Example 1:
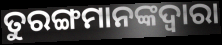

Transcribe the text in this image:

ତୁରଙ୍ଗମାନଙ୍କଦ୍ୱାରା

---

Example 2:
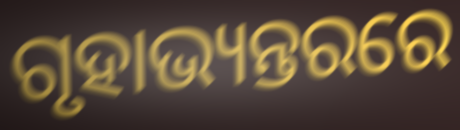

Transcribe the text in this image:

ଗୃହାଭ୍ୟନ୍ତରରେ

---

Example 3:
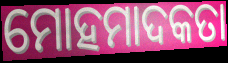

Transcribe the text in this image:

ମୋହମାଦକତା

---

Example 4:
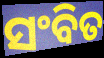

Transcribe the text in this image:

ସଂବିତ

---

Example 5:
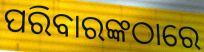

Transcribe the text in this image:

ପରିବାରଙ୍କଠାରେ